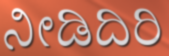
ನೀಡಿದಿರಿ